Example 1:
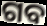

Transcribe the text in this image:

ଗବ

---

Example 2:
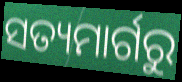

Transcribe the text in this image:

ସତ୍ୟମାର୍ଗରୁ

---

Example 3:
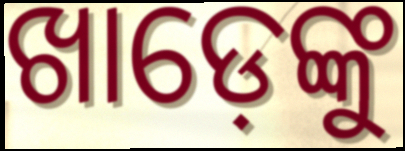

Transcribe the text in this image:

ଖାଡ଼େଙ୍କୁ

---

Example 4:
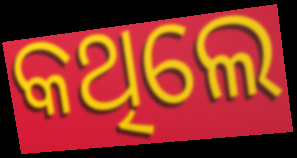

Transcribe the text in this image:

କଥିଲେ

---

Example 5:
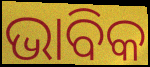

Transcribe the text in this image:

ଭାବିକ